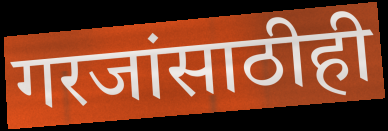
गरजांसाठीही